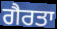
ਗੈਰਤਾ